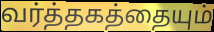
வர்த்தகத்தையும்